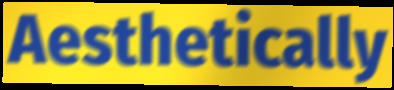
Aesthetically